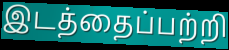
இடத்தைப்பற்றி